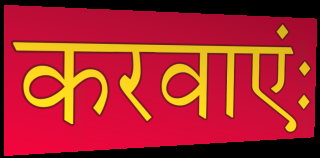
करवाएंः